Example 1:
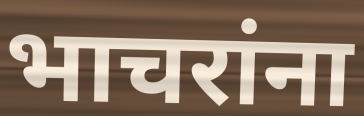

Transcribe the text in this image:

भाचरांना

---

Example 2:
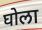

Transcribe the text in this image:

घोला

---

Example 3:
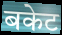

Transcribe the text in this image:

बकेट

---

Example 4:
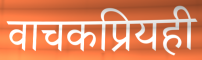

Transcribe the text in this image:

वाचकप्रियही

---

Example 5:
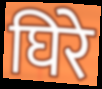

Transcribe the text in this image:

घिरे